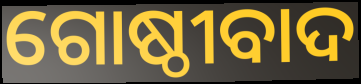
ଗୋଷ୍ଠୀବାଦ